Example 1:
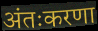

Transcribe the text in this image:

अंतःकरणा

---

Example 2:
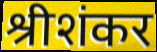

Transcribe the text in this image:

श्रीशंकर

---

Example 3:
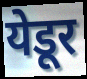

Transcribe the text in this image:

येडूर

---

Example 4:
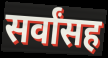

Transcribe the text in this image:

सर्वांसह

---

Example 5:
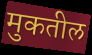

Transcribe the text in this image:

मुकतील